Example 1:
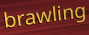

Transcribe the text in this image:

brawling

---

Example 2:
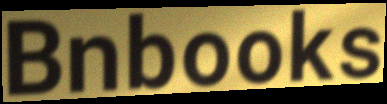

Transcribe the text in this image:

Bnbooks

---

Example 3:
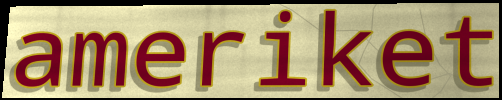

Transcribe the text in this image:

ameriket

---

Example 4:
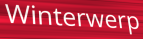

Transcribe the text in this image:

Winterwerp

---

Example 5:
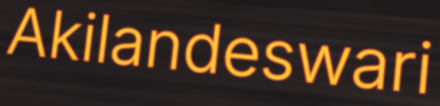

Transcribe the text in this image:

Akilandeswari